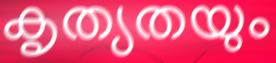
കൃത്യതയും